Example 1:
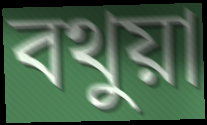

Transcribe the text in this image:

বথুয়া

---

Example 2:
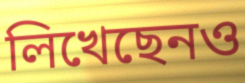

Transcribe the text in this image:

লিখেছেনও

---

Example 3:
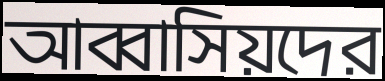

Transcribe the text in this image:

আব্বাসিয়দের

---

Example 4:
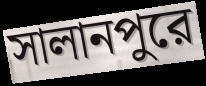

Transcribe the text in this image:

সালানপুরে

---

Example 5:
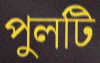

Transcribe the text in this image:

পুলটি